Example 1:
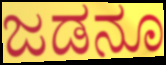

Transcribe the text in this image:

ಜಡನೂ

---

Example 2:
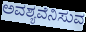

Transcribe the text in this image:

ಅವಶ್ಯವೆನಿಸುವ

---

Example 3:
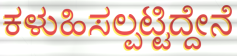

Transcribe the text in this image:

ಕಳುಹಿಸಲ್ಪಟ್ಟಿದ್ದೇನೆ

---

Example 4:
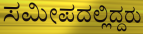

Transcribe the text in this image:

ಸಮೀಪದಲ್ಲಿದ್ದರು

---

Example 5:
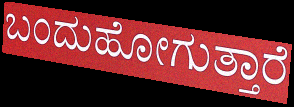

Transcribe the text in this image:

ಬಂದುಹೋಗುತ್ತಾರೆ